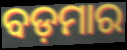
ବଡ଼ମାର